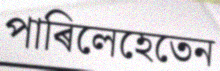
পাৰিলেহেতেন